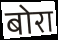
बोरा